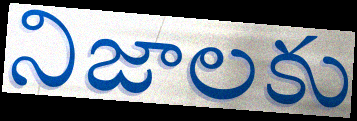
నిజాలకు